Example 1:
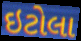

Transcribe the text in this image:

ઇટોલા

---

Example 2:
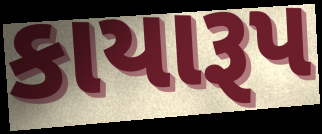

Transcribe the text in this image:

કાયારૂપ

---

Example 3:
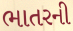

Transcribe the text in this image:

ભાતરની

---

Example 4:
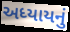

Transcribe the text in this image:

અધ્યાયનું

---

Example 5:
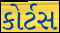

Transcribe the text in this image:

કોર્ટસ